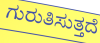
ಗುರುತಿಸುತ್ತದೆ